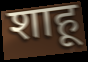
शाहू